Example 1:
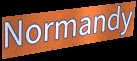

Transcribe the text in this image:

Normandy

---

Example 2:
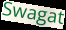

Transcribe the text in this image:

Swagat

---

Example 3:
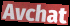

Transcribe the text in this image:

Avchat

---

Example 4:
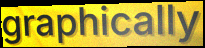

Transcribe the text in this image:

graphically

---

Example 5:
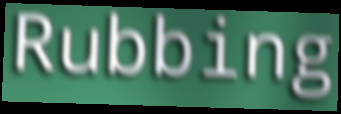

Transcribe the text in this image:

Rubbing